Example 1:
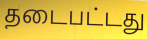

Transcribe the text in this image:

தடைபட்டது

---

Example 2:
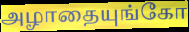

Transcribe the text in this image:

அழாதையுங்கோ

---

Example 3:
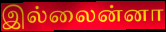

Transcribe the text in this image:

இல்லைன்னா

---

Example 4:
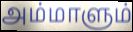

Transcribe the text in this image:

அம்மாளும்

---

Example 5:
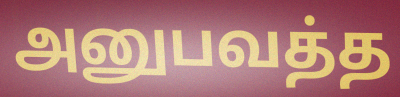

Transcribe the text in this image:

அனுபவத்த